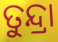
ତୁନ୍ଦ୍ରା